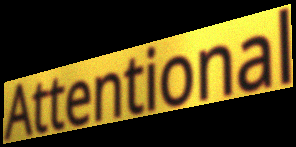
Attentional